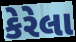
કેરેલા